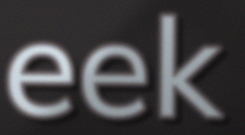
eek